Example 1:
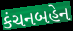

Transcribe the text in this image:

કંચનબહેન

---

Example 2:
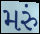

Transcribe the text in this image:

મરું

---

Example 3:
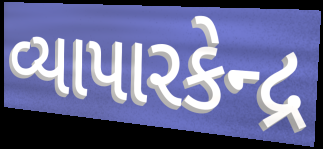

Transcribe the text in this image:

વ્યાપારકેન્દ્ર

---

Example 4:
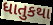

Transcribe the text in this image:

ધાતુકથા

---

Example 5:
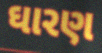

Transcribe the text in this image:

ઘારણ